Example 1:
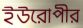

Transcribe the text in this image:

ইউরোপীর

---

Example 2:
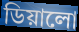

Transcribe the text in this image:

ডিয়ালো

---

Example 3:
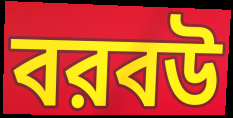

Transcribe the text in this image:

বরবউ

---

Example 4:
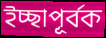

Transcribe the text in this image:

ইচ্ছাপূর্বক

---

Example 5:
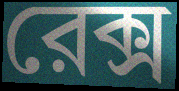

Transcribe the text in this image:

রেক্স